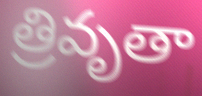
త్రివృతా